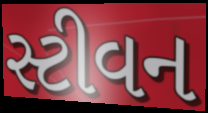
સ્ટીવન